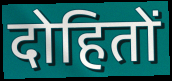
दोहितों